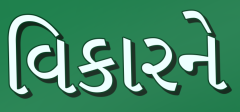
વિકારને